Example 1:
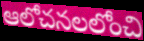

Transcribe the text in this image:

ఆలోచనలలోంచి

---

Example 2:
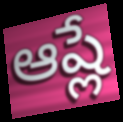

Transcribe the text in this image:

ఆష్లే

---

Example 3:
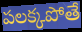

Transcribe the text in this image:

పలక్కపోతే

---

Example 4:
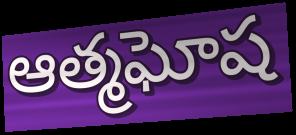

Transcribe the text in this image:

ఆత్మఘోష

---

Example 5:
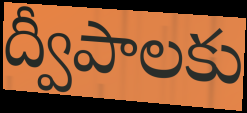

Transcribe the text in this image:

ద్వీపాలకు